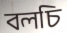
বলচি